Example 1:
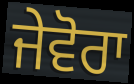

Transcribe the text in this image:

ਜੇਵੋਰਾ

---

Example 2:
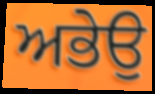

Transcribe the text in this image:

ਅਭੇਉ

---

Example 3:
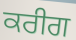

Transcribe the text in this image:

ਕਰੀਗ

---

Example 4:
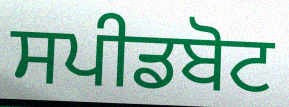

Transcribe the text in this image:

ਸਪੀਡਬੋਟ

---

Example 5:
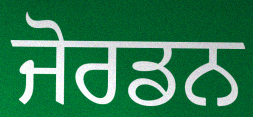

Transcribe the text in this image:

ਜੋਰਡਨ